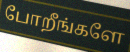
போறீங்களே